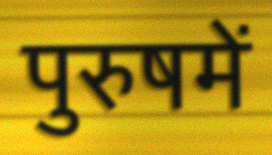
पुरुषमें